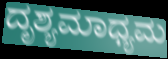
ದೃಶ್ಯಮಾಧ್ಯಮ